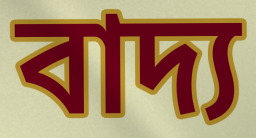
বাদ্য